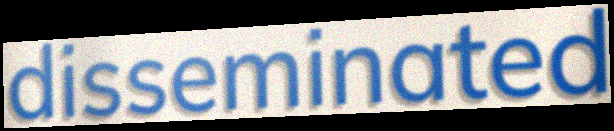
disseminated